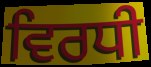
ਵਿਰਧੀ